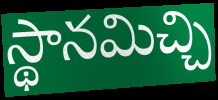
స్థానమిచ్చి